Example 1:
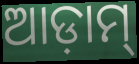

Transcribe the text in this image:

ଆଡ଼ାମ୍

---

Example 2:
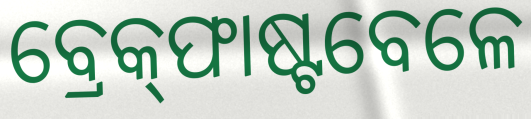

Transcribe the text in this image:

ବ୍ରେକ୍‌ଫାଷ୍ଟବେଳେ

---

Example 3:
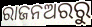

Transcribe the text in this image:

ରାଜନଅରରୁ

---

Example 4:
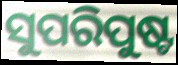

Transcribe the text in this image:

ସୁପରିପୁଷ୍ଟ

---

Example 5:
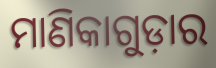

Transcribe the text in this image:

ମାଣିକାଗୁଡ଼ାର